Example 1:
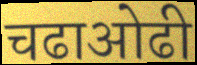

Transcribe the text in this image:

चढाओढी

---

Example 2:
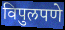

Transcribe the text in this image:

विपुलपणे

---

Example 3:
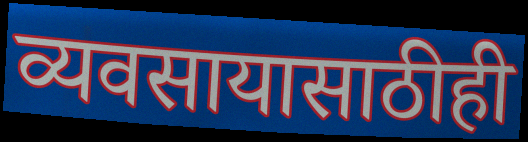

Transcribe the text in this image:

व्यवसायासाठीही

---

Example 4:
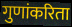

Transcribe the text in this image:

गुणांकरिता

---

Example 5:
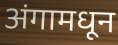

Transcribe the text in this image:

अंगामधून